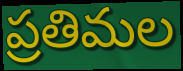
ప్రతిమల